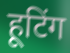
हूटिंग